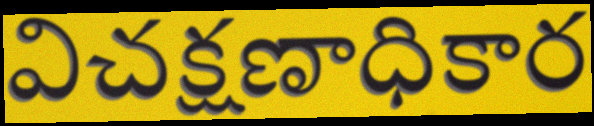
విచక్షణాధికార